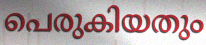
പെരുകിയതും